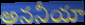
అననీయా